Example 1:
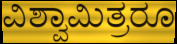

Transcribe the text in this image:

ವಿಶ್ವಾಮಿತ್ರರೂ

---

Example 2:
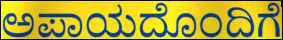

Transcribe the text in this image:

ಅಪಾಯದೊಂದಿಗೆ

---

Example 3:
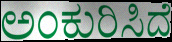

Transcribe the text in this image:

ಅಂಕುರಿಸಿದೆ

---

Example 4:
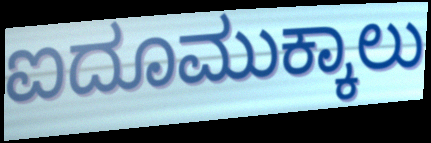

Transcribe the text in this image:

ಐದೂಮುಕ್ಕಾಲು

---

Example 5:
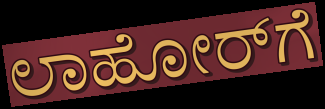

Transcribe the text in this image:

ಲಾಹೋರ್‌ಗೆ